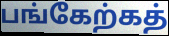
பங்கேற்கத்